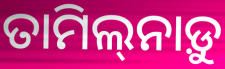
ତାମିଲ୍‌ନାଡ଼ୁ